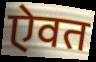
ऐवत